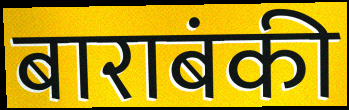
बाराबंकी